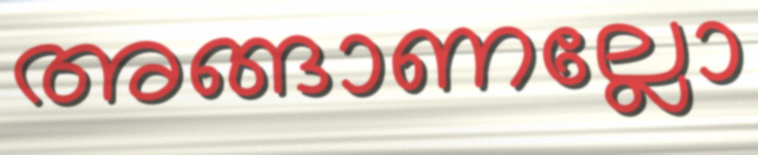
അങ്ങാണല്ലോ